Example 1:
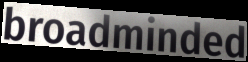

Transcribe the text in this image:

broadminded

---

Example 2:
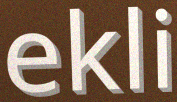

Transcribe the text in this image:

ekli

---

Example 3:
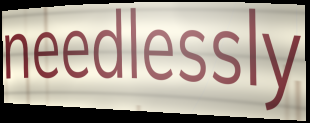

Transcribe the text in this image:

needlessly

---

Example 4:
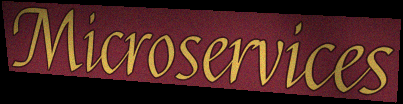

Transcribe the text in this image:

Microservices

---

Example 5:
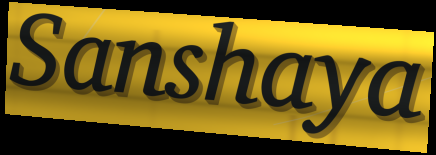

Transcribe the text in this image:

Sanshaya